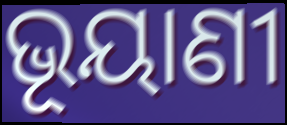
ଭୂୟାଣୀ